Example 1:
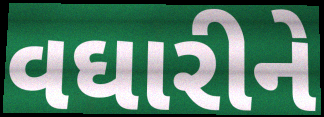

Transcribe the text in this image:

વઘારીને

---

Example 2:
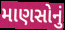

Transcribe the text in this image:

માણસોનું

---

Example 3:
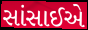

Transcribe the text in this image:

સાંસાઈએ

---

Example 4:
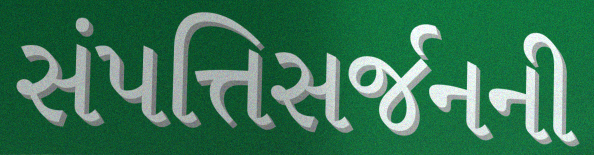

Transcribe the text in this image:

સંપત્તિસર્જનની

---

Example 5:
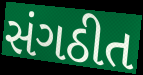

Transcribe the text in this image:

સંગઠીત